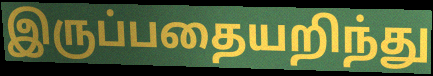
இருப்பதையறிந்து